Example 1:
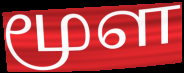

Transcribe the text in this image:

மூள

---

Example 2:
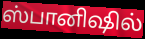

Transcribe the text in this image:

ஸ்பானிஷில்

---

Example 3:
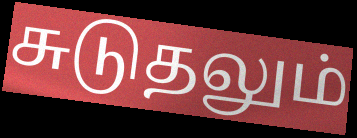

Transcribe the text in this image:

சுடுதலும்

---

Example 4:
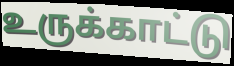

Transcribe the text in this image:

உருக்காட்டு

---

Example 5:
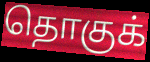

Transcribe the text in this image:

தொகுக்